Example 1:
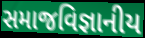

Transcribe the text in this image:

સમાજવિજ્ઞાનીય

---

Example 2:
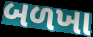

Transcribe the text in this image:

બળખા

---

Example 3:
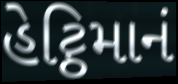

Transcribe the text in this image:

હેટ્ઠિમાનં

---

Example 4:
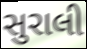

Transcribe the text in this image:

સુરાલી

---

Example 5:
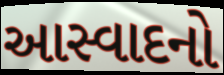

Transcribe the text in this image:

આસ્વાદનો